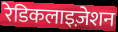
रेडिकलाइज़ेशन